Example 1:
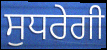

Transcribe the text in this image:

ਸੁਧਰੇਗੀ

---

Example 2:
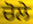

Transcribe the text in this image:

ਚੋਲੇ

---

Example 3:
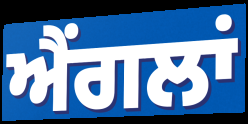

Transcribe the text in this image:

ਐਂਗਲਾਂ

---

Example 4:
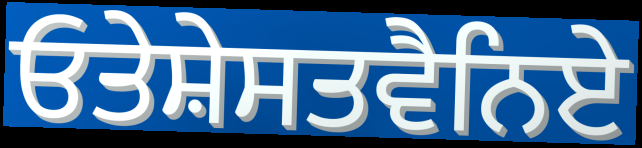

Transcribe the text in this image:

ਓਤੇਸ਼ੇਸਤਵੈਨਿਏ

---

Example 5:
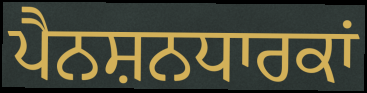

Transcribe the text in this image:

ਪੈਨਸ਼ਨਧਾਰਕਾਂ